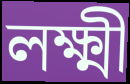
লক্ষ্মী